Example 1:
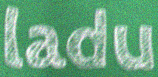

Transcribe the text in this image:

ladu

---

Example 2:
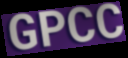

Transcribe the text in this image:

GPCC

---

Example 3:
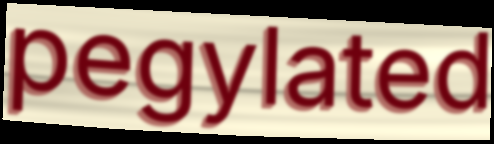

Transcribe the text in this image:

pegylated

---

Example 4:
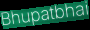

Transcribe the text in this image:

Bhupatbhai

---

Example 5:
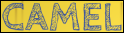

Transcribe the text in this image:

CAMEL